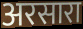
अरसारा